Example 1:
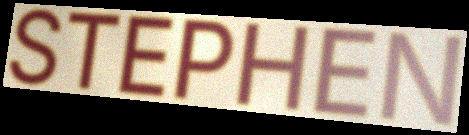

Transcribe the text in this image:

STEPHEN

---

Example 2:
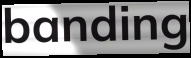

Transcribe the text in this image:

banding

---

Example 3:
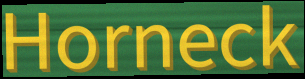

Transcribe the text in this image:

Horneck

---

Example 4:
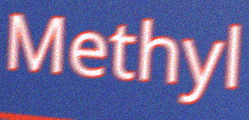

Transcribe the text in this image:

Methyl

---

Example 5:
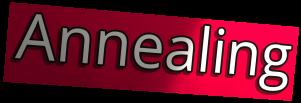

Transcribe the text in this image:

Annealing